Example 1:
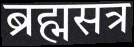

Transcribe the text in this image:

ब्रह्मसत्र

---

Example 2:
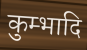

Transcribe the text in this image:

कुम्भादि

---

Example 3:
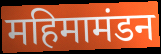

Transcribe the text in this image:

महिमामंडन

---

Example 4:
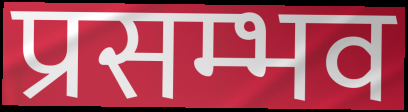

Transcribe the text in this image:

प्रसम्भव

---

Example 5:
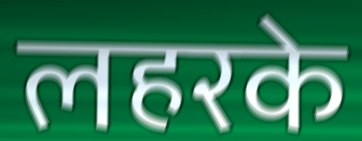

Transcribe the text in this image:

लहरके